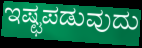
ಇಷ್ಟಪಡುವುದು